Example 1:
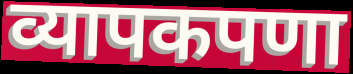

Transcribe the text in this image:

व्यापकपणा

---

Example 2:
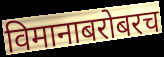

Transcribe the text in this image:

विमानाबरोबरच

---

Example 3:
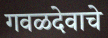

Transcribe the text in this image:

गवळदेवाचे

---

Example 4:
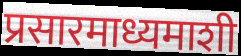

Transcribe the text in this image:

प्रसारमाध्यमाशी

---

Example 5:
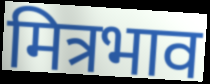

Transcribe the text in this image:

मित्रभाव